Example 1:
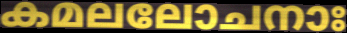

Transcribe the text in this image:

കമലലോചനാഃ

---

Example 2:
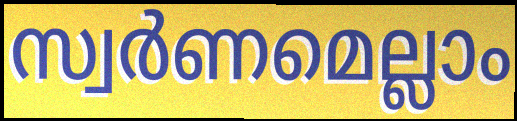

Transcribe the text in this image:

സ്വർണമെല്ലാം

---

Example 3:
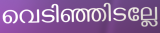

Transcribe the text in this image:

വെടിഞ്ഞിടല്ലേ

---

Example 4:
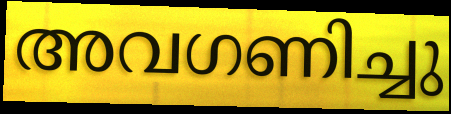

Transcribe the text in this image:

അവഗണിച്ചു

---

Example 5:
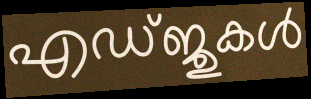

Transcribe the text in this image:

എഡ്ജുകൾ